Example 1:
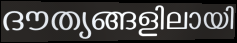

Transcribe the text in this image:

ദൗത്യങ്ങളിലായി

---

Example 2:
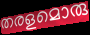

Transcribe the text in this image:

തരളമൊരു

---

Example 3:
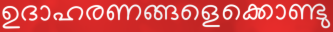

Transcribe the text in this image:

ഉദാഹരണങ്ങളെക്കൊണ്ടു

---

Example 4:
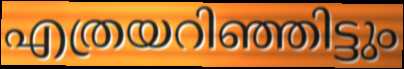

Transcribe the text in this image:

എത്രയറിഞ്ഞിട്ടും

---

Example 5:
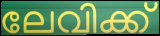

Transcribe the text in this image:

ലേവിക്ക്